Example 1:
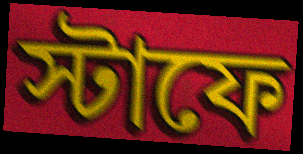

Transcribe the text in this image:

স্টাফে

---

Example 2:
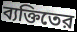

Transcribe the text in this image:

ব্যক্তিতের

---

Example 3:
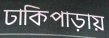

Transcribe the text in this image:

ঢাকিপাড়ায়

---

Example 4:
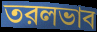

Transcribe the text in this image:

তরলভাব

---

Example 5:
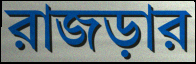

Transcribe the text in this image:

রাজড়ার